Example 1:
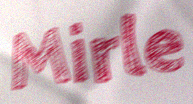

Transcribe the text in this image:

Mirle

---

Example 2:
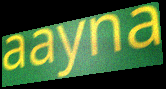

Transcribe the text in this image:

aayna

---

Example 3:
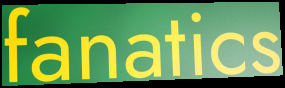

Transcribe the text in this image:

fanatics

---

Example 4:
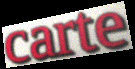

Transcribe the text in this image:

carte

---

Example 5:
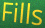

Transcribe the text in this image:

Fills